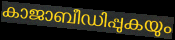
കാജാബീഡിപ്പുകയും